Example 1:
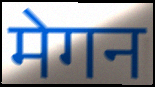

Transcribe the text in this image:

मेगन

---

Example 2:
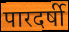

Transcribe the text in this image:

पारदर्षी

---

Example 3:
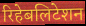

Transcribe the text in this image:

रिहेबलिटेशन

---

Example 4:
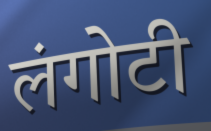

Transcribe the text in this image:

लंगोटी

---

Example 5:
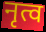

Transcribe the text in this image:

नृत्व